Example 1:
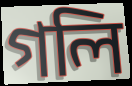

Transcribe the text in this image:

গলি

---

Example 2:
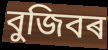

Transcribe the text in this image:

বুজিবৰ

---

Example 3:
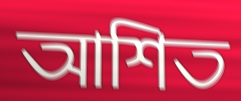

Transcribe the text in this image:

আশিত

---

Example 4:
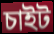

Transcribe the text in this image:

চাইট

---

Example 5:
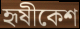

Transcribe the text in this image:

হৃষীকেশ